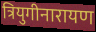
त्रियुगीनारायण